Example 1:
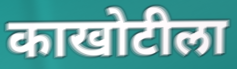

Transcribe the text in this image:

काखोटीला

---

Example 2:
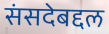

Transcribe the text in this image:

संसदेबद्दल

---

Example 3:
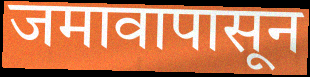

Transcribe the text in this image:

जमावापासून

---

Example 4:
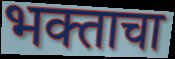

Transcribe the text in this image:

भक्ताचा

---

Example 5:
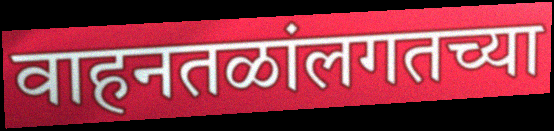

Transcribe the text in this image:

वाहनतळांलगतच्या